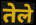
तेले